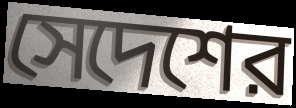
সেদেশের